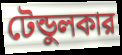
টেন্ডুলকার